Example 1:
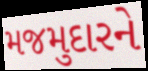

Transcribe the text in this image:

મજમુદારને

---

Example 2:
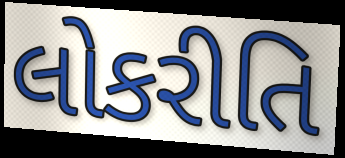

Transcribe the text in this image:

લોકરીતિ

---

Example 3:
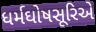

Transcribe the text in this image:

ધર્મઘોષસૂરિએ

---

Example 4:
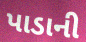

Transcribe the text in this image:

પાડાની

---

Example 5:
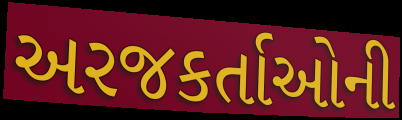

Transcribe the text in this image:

અરજકર્તાઓની